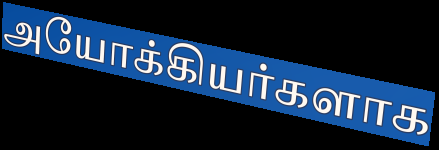
அயோக்கியர்களாக